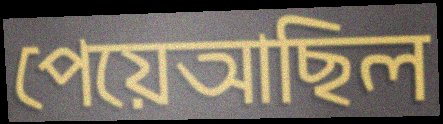
পেয়েআছিল